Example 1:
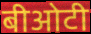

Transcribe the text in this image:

बीओटी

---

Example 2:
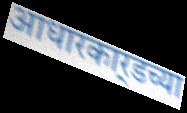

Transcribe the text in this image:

आधारकार्डच्या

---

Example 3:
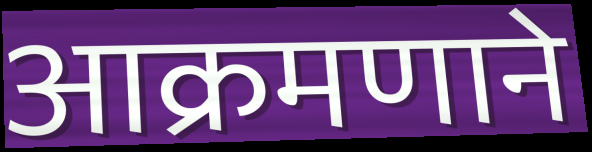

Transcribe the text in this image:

आक्रमणाने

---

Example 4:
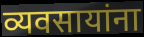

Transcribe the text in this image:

व्यवसायांना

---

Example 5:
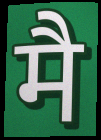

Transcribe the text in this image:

मै